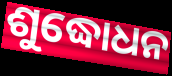
ଶୁଦ୍ଧୋଧନ